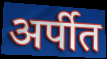
अर्पीत